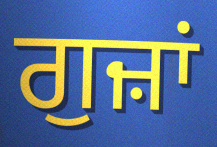
ਗੁਜ਼ਾਂ